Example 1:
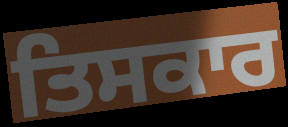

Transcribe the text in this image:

ਤਿਸਕਾਰ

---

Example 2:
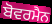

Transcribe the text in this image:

ਬੋਵਰਮੈਨ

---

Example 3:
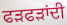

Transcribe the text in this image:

ਫੜਫੜਾਂਦੀ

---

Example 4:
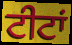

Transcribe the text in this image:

ਟੀਟਾਂ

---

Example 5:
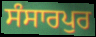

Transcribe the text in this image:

ਸੰਸਾਰਪੁਰ